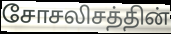
சோசலிசத்தின்